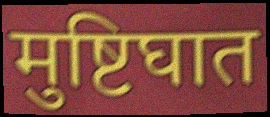
मुष्टिघात